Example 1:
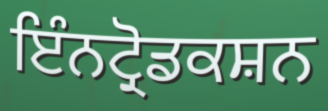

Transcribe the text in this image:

ਇੰਨਟ੍ਰੋਡਕਸ਼ਨ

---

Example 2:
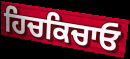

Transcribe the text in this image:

ਹਿਚਕਿਚਾਓ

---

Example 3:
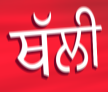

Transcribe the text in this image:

ਥੱਲੀ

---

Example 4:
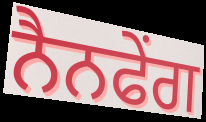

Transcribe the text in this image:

ਨੈਨਫੇਂਗ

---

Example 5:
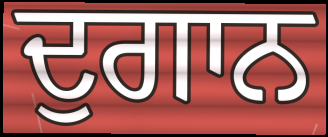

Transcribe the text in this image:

ਦੁਗਾਨ